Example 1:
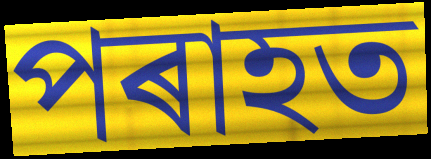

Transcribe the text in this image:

পৰাহত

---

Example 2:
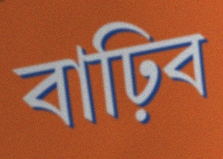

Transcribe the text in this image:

বাঢ়িব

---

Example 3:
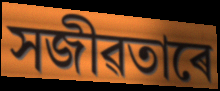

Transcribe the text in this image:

সজীৱতাৰে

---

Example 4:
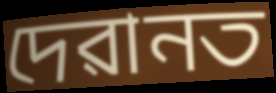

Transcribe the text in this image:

দেৱানত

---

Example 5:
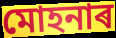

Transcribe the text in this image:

মোহনাৰ